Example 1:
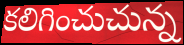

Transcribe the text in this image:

కలిగించుచున్న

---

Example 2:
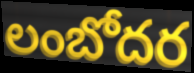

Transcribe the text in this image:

లంబోదర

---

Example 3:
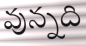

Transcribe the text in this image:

వున్నది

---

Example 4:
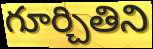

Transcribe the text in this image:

గూర్చితిని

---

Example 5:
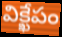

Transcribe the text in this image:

విక్ఖేపం